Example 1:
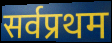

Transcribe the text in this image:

सर्वप्रथम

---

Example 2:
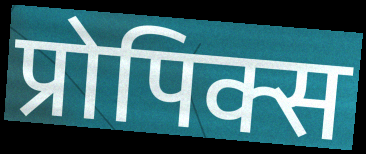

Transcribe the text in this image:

प्रोपिक्स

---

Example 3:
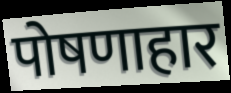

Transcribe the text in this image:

पोषणाहार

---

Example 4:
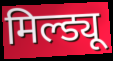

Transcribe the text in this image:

मिल्ड्यू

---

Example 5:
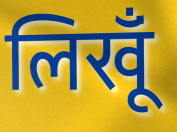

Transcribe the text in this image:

लिखूंँ